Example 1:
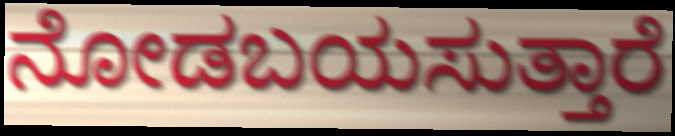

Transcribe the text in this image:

ನೋಡಬಯಸುತ್ತಾರೆ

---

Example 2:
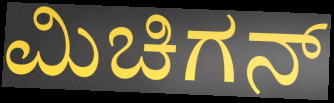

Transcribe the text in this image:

ಮಿಚಿಗನ್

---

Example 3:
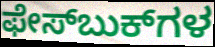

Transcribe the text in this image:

ಫೇಸ್‌ಬುಕ್‌ಗಳ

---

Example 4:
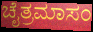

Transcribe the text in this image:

ಚೈತ್ರಮಾಸಂ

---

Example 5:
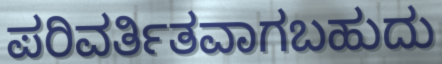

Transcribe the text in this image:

ಪರಿವರ್ತಿತವಾಗಬಹುದು